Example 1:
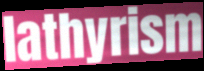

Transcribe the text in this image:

lathyrism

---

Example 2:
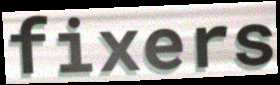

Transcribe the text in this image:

fixers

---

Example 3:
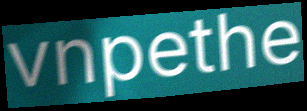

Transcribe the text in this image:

vnpethe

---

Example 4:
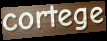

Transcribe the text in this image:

cortege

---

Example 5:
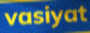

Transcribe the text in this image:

vasiyat